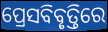
ପ୍ରେସବିବୃତ୍ତିରେ